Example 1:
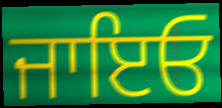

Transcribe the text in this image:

ਜਾਇਓ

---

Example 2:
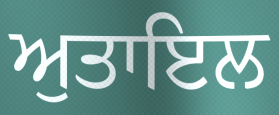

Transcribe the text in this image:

ਅੁਤਾਇਲ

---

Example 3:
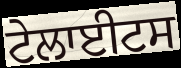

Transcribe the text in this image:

ਟੇਲਾਈਟਸ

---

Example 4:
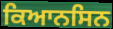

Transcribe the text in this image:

ਕਿਆਨਸਿਨ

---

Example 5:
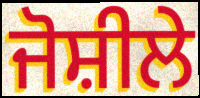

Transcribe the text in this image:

ਜੋਸ਼ੀਲੇ